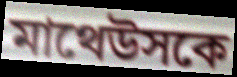
মাথেউসকে